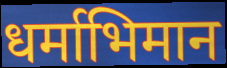
धर्माभिमान